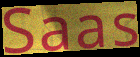
Saas